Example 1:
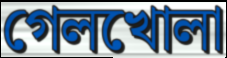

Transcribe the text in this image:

গেলখোলা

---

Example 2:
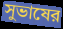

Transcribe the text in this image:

সুভাষের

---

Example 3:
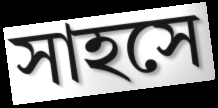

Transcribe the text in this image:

সাহসে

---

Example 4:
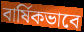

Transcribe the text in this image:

বার্ষিকভাবে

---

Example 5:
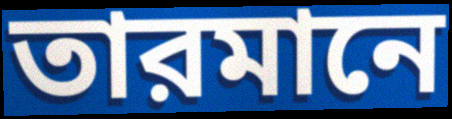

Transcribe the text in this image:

তারমানে